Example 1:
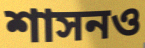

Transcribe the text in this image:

শাসনও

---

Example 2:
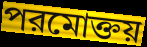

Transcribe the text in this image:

পরমোক্তয়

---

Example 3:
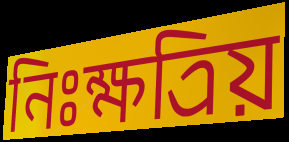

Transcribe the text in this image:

নিঃক্ষত্রিয়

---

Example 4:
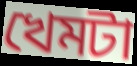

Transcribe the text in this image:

খেমটা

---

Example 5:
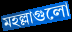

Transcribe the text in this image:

মহল্লাগুলো